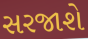
સરજાશે